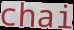
chai